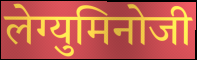
लेग्युमिनोजी